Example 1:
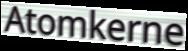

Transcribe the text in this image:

Atomkerne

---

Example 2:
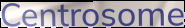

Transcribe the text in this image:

Centrosome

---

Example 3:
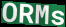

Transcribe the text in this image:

ORMs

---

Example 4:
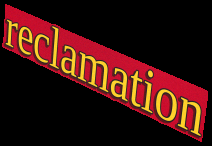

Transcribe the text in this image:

reclamation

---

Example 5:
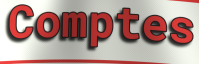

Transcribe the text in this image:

Comptes